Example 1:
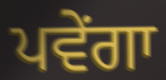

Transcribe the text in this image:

ਪਵੇਂਗਾ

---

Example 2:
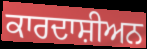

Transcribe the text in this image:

ਕਾਰਦਾਸ਼ੀਅਨ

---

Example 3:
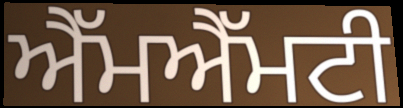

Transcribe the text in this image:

ਐੱਮਐੱਮਟੀ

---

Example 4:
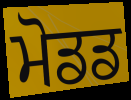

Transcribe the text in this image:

ਮੋਡਡ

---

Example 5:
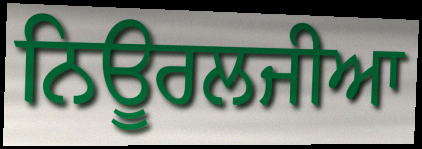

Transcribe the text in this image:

ਨਿਊਰਲਜੀਆ